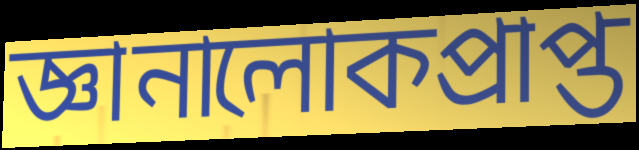
জ্ঞানালোকপ্রাপ্ত